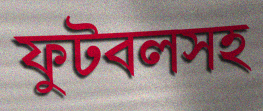
ফুটবলসহ